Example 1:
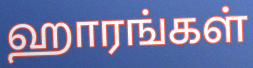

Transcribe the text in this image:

ஹாரங்கள்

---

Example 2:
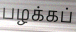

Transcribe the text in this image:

பழக்கப்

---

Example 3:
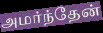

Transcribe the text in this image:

அமர்ந்தேன்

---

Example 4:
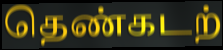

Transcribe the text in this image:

தெண்கடற்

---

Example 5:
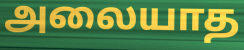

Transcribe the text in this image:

அலையாத